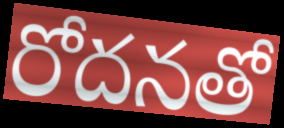
రోదనతో